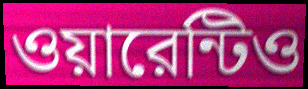
ওয়ারেন্টিও